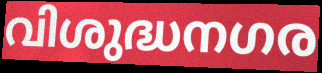
വിശുദ്ധനഗര